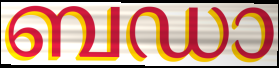
ബഡാ